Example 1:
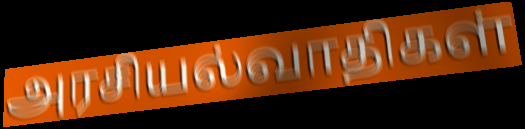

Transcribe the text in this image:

அரசியல்வாதிகள்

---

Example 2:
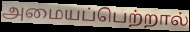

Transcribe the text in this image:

அமையப்பெற்றால்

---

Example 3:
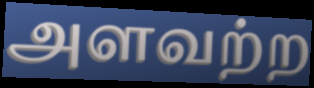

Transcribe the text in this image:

அளவற்ற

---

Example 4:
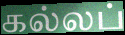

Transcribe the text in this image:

கல்லப்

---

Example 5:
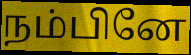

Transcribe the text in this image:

நம்பினே